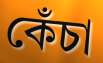
কেঁচা